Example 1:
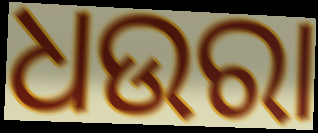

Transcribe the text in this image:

ଧଉରା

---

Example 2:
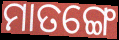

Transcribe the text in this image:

ମାତଙ୍ଗେ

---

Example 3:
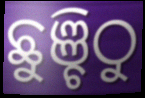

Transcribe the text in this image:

ଛୁଞ୍ଚିଠୁ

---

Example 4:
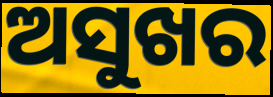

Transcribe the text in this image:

ଅସୁଖର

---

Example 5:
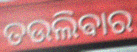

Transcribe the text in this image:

ତଉଲିଵାର